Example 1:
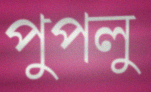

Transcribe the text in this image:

পুপলু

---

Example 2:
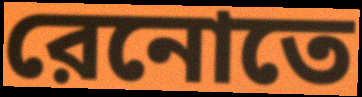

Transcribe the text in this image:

রেনোতে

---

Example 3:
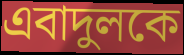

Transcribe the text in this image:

এবাদুলকে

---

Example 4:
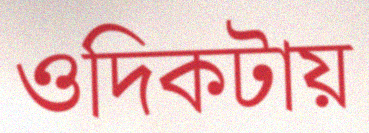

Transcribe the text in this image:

ওদিকটায়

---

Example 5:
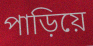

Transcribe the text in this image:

পাড়িয়ে